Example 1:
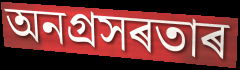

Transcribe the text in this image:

অনগ্ৰসৰতাৰ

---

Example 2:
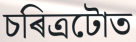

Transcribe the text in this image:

চৰিত্ৰটোত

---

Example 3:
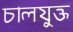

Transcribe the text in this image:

চালযুক্ত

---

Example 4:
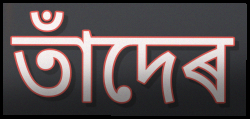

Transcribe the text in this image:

তাঁদেৰ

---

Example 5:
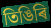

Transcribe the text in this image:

তিঙিৰি